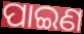
ପାଇଣ